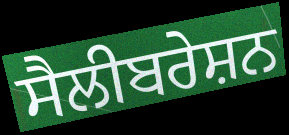
ਸੈਲੀਬਰੇਸ਼ਨ